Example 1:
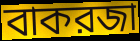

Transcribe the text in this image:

বাকরজা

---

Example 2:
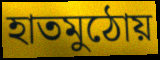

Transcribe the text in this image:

হাতমুঠোয়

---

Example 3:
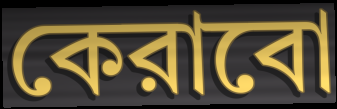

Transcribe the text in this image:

কেরাবো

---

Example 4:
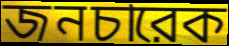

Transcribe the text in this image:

জনচারেক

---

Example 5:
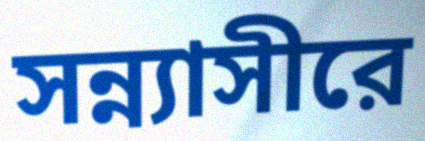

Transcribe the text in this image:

সন্ন্যাসীরে